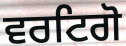
ਵਰਟਿਗੋ